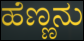
ಹೆಣ್ಣನು